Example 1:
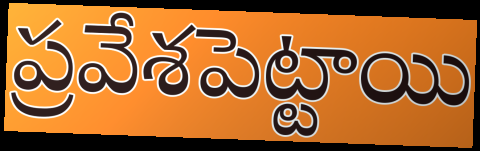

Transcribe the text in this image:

ప్రవేశపెట్టాయి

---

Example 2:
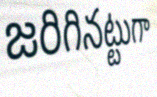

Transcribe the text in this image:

జరిగినట్టుగా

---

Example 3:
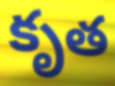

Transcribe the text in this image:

కృత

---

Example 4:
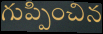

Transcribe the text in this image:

గుప్పించిన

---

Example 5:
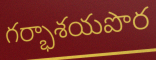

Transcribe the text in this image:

గర్భాశయపొర